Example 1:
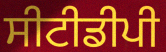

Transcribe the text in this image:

ਸੀਟੀਡੀਪੀ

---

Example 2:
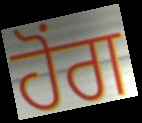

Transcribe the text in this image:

ਹੋੰਗ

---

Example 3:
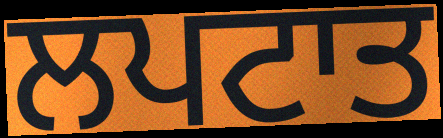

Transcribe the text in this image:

ਲਪਟਾਤ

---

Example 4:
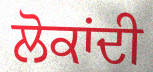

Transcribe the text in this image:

ਲੋਕਾਂਦੀ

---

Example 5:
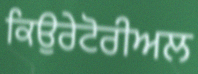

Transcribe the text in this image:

ਕਿਉਰੇਟੋਰੀਅਲ